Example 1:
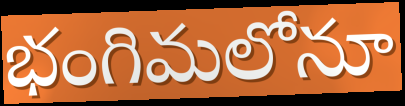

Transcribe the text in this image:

భంగిమలోనూ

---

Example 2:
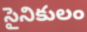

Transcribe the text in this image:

సైనికులం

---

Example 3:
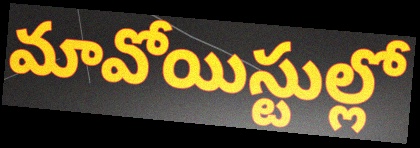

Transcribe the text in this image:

మావోయిస్టుల్లో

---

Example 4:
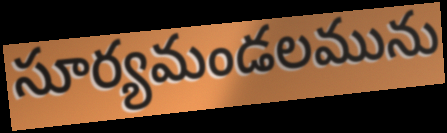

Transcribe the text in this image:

సూర్యమండలమును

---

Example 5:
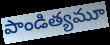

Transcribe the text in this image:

పాండిత్యమూ